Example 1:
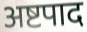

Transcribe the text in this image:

अष्टपाद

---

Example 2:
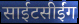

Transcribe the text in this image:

साईटसीईंग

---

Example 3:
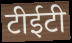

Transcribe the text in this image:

टीईटी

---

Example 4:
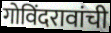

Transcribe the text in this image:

गोविंदरावांची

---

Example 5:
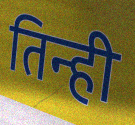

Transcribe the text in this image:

तिन्ही